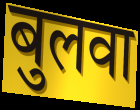
बुलवा